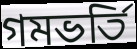
গমভর্তি